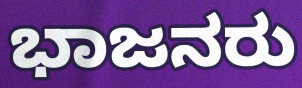
ಭಾಜನರು